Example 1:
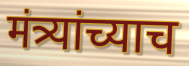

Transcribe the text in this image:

मंत्र्यांच्याच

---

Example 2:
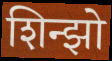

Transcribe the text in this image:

शिन्झो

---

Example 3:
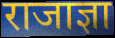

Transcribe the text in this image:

राजाज्ञा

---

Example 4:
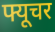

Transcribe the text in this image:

फ्यूचर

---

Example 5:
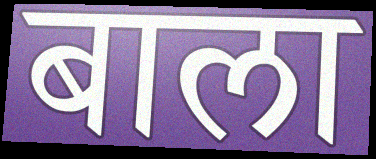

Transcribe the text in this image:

बाला